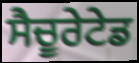
ਸੈਚੂਰੇਟੇਡ